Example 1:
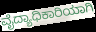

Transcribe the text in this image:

ವೈದ್ಯಾಧಿಕಾರಿಯಾಗಿ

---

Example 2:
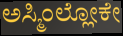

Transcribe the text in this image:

ಅಸ್ಮಿಂಲ್ಲೋಕೇ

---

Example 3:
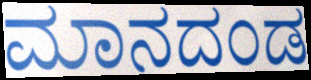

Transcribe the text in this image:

ಮಾನದಂಡ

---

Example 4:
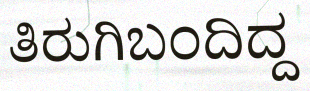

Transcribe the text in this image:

ತಿರುಗಿಬಂದಿದ್ದ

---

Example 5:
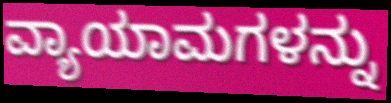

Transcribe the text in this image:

ವ್ಯಾಯಾಮಗಳನ್ನು